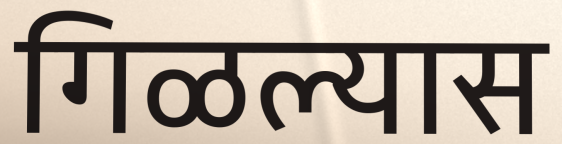
गिळल्यास